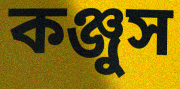
কঞ্জুস